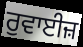
ਰੁਵਾਈਜ਼